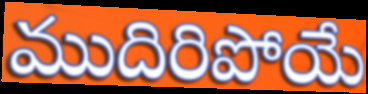
ముదిరిపోయే